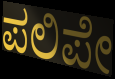
ಪಲಿಪೇ